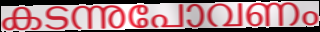
കടന്നുപോവണം